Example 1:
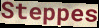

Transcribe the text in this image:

Steppes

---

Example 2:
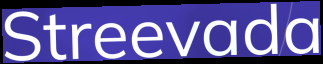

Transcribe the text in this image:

Streevada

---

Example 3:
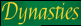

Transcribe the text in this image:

Dynasties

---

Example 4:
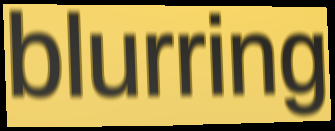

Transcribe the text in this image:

blurring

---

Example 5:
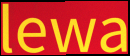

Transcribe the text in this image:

lewa